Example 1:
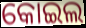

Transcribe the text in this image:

କୋଇଲ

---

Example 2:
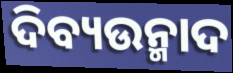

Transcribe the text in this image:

ଦିବ୍ୟଉନ୍ମାଦ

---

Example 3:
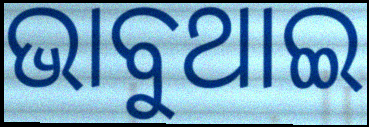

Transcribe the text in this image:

ଭାବୁଥାଇ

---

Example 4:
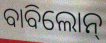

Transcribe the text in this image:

ବାବିଲୋନ୍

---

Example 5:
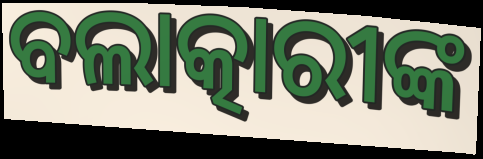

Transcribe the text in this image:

ବଲାତ୍କାରୀଙ୍କ